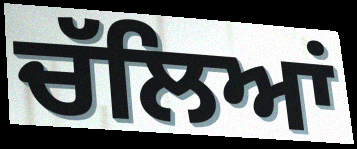
ਚੱਲਿਆਂ